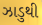
ઝાડુથી